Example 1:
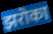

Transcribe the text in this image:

झरोका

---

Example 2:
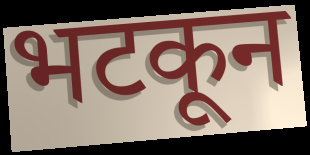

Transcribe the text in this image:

भटकून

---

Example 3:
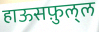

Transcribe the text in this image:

हाऊसफ़ुल्ल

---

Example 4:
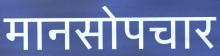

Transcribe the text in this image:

मानसोपचार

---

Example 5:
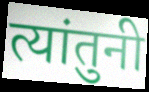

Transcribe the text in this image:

त्यांतुनी